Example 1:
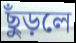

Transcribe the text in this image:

ছুঁড়লে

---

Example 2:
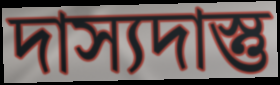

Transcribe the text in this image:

দাস্যদাস্তু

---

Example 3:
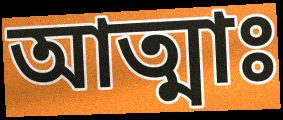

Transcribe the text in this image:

আত্মাঃ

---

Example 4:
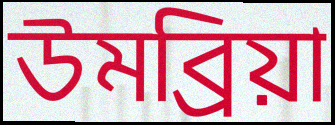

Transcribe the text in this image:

উমব্রিয়া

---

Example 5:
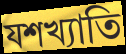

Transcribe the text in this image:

যশখ্যাতি